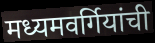
मध्यमवर्गियांची